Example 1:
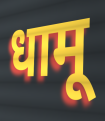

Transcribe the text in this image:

धामू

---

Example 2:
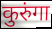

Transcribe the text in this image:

कुरुंगा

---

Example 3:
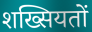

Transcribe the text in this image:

शख्सियतों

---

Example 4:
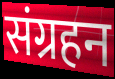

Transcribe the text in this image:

संग्रहन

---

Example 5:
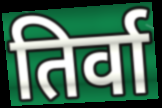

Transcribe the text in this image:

तिर्वा